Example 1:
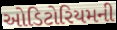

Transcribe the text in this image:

ઓડિટોરિયમની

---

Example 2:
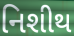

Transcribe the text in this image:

નિશીથ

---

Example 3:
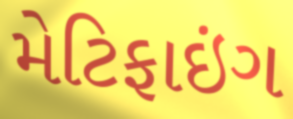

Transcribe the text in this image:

મેટિફાઇંગ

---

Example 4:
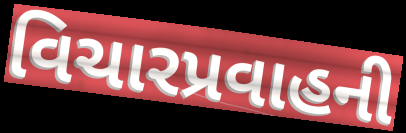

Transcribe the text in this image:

વિચારપ્રવાહની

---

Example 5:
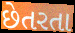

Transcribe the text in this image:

છેતરતા